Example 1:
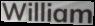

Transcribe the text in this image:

William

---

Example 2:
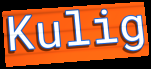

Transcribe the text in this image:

Kulig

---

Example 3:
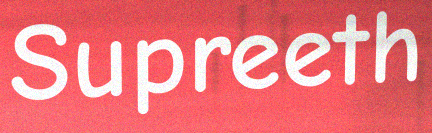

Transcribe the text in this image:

Supreeth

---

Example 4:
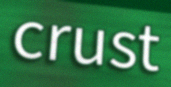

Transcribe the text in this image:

crust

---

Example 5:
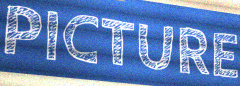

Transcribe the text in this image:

PICTURE